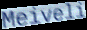
Meiveli